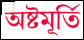
অষ্টমূৰ্তি